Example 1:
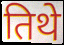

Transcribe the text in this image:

तिथे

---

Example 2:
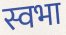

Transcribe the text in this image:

स्वभा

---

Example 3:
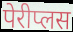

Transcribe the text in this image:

पेरीप्लस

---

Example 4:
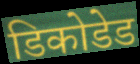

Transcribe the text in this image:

डिकोडेड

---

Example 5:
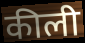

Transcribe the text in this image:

कीली